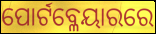
ପୋର୍ଟବ୍ଳେୟାରରେ